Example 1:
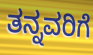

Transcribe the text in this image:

ತನ್ನವರಿಗೆ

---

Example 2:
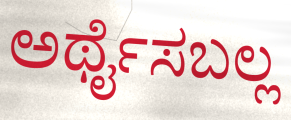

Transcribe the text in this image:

ಅರ್ಥೈಸಬಲ್ಲ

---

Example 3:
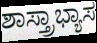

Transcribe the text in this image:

ಶಾಸ್ತ್ರಾಭ್ಯಾಸ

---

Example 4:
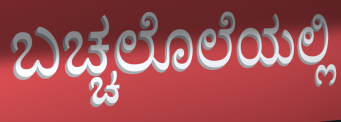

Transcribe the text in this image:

ಬಚ್ಚಲೊಲೆಯಲ್ಲಿ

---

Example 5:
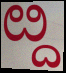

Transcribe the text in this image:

ೞ್ದ